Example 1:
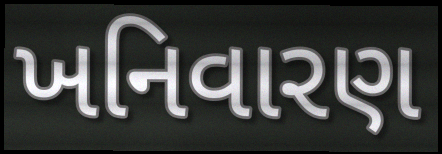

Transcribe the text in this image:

ખનિવારણ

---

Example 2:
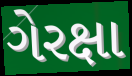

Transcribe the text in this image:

ગેરક્ષા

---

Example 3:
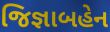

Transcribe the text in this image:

જિજ્ઞાબહેન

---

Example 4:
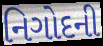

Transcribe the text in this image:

નિગોદની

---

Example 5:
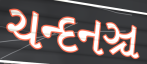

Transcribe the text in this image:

ચન્દનઞ્ચ